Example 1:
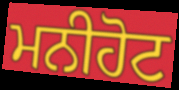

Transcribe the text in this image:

ਮਨੀਹੋਟ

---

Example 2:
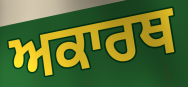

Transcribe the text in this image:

ਅਕਾਰਥ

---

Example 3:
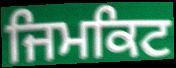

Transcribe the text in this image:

ਜਿਮਕਿਟ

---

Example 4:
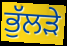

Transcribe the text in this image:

ਭੁੱਲੜੇ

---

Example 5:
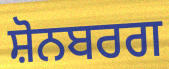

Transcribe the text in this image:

ਸ਼ੋਨਬਰਗ